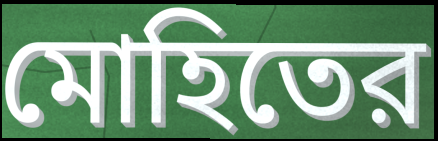
মোহিতের